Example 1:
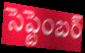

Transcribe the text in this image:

సెప్టెంబర్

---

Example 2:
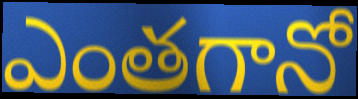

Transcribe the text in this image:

ఎంతగానో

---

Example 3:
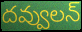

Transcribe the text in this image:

దవ్వులన్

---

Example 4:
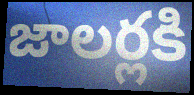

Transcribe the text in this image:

జాలర్లకి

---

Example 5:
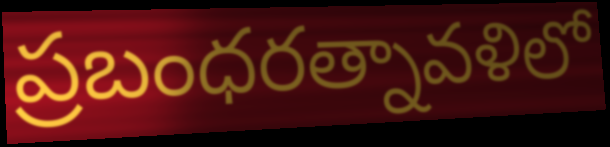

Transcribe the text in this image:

ప్రబంధరత్నావళిలో